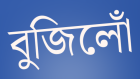
বুজিলোঁ